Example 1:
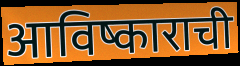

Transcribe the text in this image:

आविष्काराची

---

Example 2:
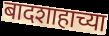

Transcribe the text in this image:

बादशाहाच्या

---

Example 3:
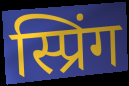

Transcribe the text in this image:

स्प्रिंग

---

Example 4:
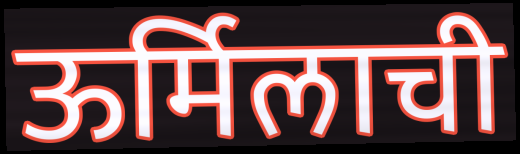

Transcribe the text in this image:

ऊर्मिलाची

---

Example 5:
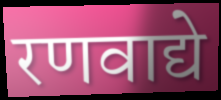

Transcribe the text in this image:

रणवाद्ये